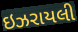
ઇઝરાયલી